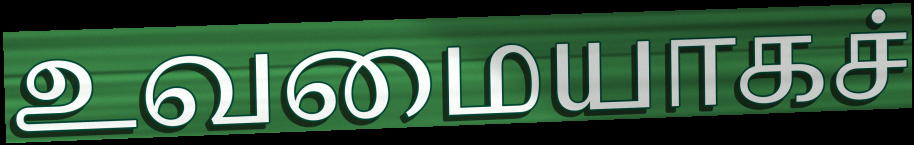
உவமையாகச்